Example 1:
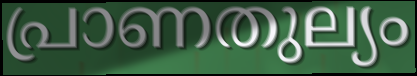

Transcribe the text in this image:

പ്രാണതുല്യം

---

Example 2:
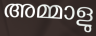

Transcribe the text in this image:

അമ്മാളു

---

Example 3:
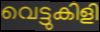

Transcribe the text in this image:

വെട്ടുകിളി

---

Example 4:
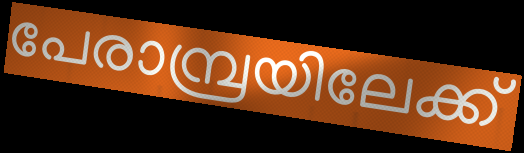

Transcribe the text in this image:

പേരാമ്പ്രയിലേക്ക്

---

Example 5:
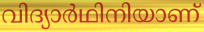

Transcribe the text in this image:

വിദ്യാർഥിനിയാണ്